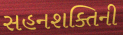
સહનશક્તિની